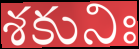
శకునిః